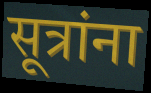
सूत्रांना